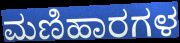
ಮಣಿಹಾರಗಳ